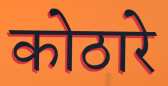
कोठारे